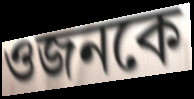
ওজনকে